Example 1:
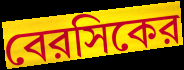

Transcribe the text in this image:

বেরসিকের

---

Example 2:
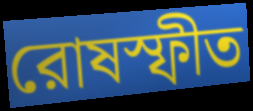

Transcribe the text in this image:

রোষস্ফীত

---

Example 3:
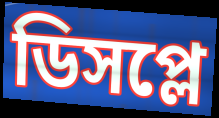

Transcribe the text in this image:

ডিসপ্লে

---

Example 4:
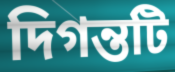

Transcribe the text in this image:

দিগন্তটি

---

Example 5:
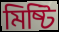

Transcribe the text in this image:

মিষ্টি